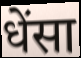
धेंसा